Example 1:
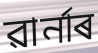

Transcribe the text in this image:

ৱাৰ্নাৰ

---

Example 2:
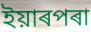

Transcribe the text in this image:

ইয়াৰপৰা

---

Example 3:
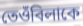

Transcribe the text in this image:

তেওঁবিলাকে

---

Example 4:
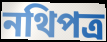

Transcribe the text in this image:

নথিপত্ৰ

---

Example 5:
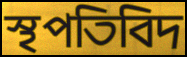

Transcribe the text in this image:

স্থপতিবিদ